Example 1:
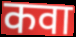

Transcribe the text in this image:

कवा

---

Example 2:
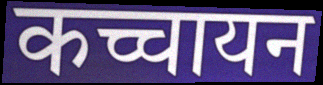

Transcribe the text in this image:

कच्चायन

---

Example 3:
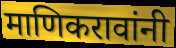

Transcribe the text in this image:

माणिकरावांनी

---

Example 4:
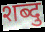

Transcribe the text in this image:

शब्दु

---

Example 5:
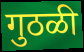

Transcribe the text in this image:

गुठळी